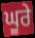
ਘੂਰੇ